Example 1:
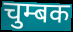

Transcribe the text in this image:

चुम्बक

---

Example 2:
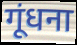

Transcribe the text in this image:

गूंधना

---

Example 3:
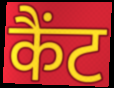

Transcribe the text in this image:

कैंट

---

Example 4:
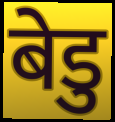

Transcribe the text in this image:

बेडु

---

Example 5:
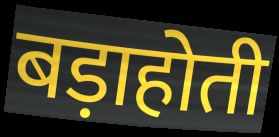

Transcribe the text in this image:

बड़ाहोती